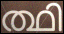
ത്ഥി